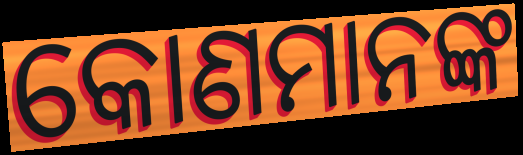
କୋଣମାନଙ୍କ